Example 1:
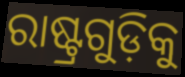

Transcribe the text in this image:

ରାଷ୍ଟ୍ରଗୁଡ଼ିକୁ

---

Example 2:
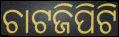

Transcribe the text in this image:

ଚାଟଜିପିଟି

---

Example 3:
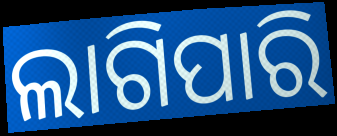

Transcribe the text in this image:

ଲାଗିପାରି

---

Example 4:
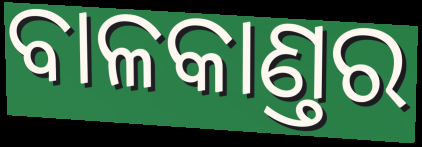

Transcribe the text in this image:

ବାଳକାଣ୍ତର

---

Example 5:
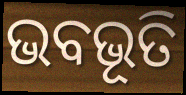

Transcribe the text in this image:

ଭବଭୂତି